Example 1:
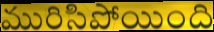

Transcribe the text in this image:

మురిసిపోయింది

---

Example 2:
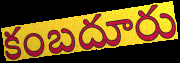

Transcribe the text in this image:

కంబదూరు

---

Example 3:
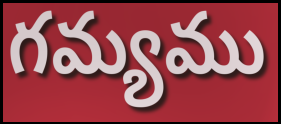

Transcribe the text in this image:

గమ్యము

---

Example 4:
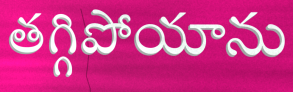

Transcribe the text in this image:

తగ్గిపోయాను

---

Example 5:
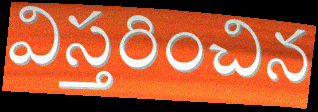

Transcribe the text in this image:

విస్తరించిన